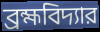
ব্রহ্মবিদ্যার